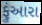
ફુંઆરા